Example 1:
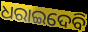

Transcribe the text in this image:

ଧରାଇଦେବି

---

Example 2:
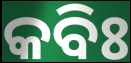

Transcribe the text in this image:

କବିଃ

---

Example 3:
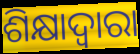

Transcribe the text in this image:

ଶିକ୍ଷାଦ୍ୱାରା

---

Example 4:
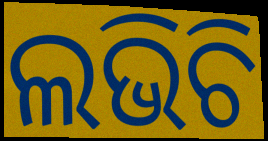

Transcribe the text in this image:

ଲଭିଚି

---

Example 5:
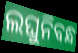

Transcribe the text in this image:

ଲଘୁନିବନ୍ଧ